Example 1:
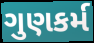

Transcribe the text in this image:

ગુણકર્મ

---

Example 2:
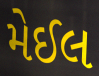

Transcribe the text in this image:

મેઈલ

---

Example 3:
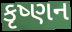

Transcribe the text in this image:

કૃષ્ણન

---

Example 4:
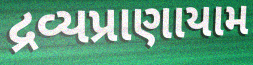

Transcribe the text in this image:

દ્રવ્યપ્રાણાયામ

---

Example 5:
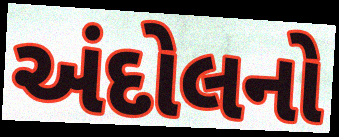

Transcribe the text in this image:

અંદોલનો